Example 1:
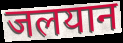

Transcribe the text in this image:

जलयान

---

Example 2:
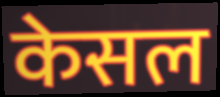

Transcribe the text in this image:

केसल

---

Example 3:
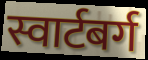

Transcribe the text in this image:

स्वार्टबर्ग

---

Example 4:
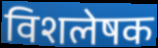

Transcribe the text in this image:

विशलेषक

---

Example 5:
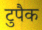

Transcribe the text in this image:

टुपैक